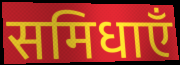
समिधाएँ